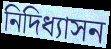
নিদিধ্যাসন